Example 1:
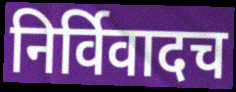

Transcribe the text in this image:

निर्विवादच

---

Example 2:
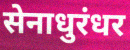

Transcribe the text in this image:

सेनाधुरंधर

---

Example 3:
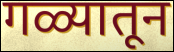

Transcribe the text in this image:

गळ्यातून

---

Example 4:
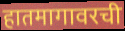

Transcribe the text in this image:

हातमागावरची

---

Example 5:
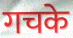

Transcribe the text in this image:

गचके